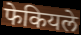
फेकियले